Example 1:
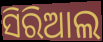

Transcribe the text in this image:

ସିରିଆଲ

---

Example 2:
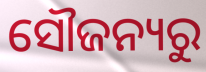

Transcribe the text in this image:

ସୌଜନ୍ୟରୁ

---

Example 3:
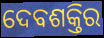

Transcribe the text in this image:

ଦେବଶକ୍ତିର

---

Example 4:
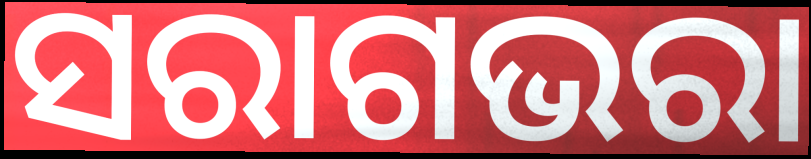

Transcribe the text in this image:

ସରାଗଭରା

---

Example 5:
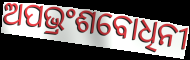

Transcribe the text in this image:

ଅପଭ୍ରଂଶବୋଧିନୀ